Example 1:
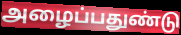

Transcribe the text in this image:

அழைப்பதுண்டு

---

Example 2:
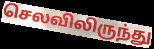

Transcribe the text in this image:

செலவிலிருந்து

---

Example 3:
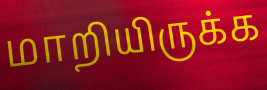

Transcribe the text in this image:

மாறியிருக்க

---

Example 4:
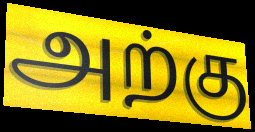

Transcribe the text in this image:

அற்கு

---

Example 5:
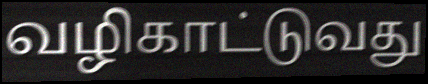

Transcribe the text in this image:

வழிகாட்டுவது